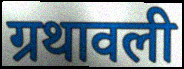
ग्रथावली